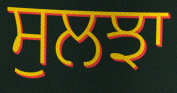
ਸੁਲਝਾ